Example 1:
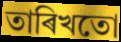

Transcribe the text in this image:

তাৰিখতো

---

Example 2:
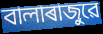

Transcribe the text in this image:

বালাৰাজুৱে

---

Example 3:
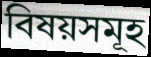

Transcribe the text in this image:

বিষয়সমূহ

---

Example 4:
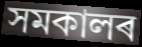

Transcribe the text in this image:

সমকালৰ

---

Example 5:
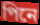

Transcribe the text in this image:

পিনে